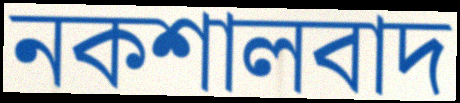
নকশালবাদ